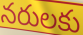
నరులకు